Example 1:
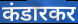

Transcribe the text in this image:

कंडारकर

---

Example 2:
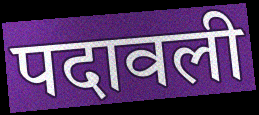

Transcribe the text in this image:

पदावली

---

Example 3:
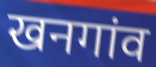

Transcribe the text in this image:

खनगांव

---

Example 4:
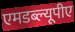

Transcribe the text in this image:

एमडब्ल्यूपीए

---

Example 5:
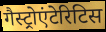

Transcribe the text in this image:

गैस्ट्रोएंटेरिटिस